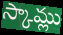
స్కామ్లు